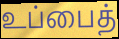
உப்பைத்